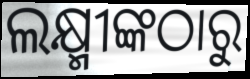
ଲକ୍ଷ୍ମୀଙ୍କଠାରୁ